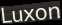
Luxon